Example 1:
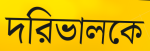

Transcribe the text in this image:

দরিভালকে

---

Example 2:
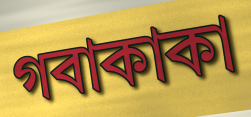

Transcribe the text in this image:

গবাকাকা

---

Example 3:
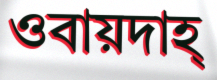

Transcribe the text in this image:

ওবায়দাহ্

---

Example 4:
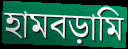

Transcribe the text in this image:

হামবড়ামি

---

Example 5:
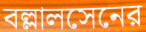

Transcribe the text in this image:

বল্লালসেনের